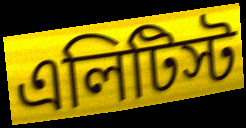
এলিটিস্ট